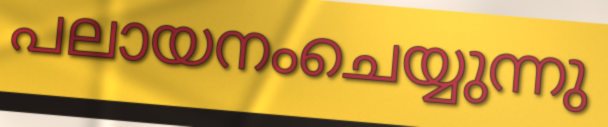
പലായനംചെയ്യുന്നു